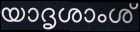
യാദൃശാംശ്